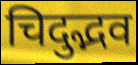
चिदुद्भव